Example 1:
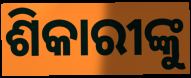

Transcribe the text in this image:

ଶିକାରୀଙ୍କୁ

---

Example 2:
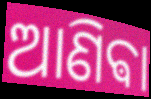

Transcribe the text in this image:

ଆଣିଵା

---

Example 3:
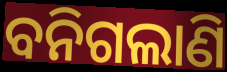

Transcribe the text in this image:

ବନିଗଲାଣି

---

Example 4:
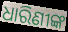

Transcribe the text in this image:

ଧାରିଣୀଙ୍କ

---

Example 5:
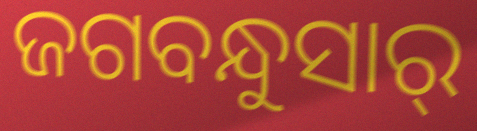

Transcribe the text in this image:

ଜଗବନ୍ଧୁସାର୍